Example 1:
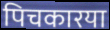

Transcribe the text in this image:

पिचकारया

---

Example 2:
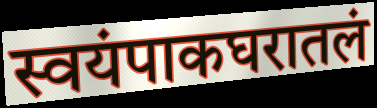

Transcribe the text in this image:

स्वयंपाकघरातलं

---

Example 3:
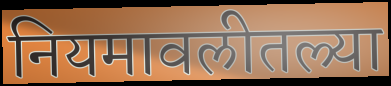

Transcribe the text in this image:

नियमावलीतल्या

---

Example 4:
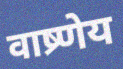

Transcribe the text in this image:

वाष्र्णेय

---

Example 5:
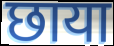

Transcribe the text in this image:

छाया